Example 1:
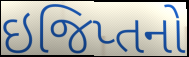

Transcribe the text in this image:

ઇજિપ્તનો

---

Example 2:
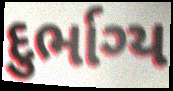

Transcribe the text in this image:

દુર્ભાગ્ય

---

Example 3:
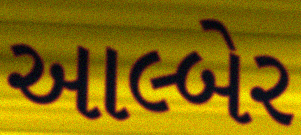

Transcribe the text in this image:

આલ્બેર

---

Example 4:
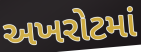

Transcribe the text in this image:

અખરોટમાં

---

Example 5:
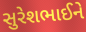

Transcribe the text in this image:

સુરેશભાઈને